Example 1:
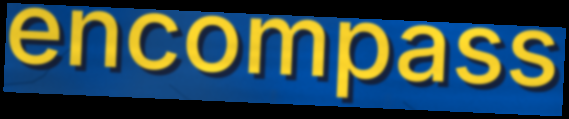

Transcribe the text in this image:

encompass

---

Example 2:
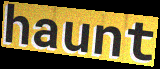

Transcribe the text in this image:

haunt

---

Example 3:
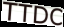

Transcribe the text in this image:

TTDC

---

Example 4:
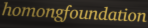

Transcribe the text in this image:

homongfoundation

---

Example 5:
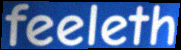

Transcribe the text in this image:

feeleth